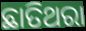
ଛାତିଥରା